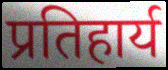
प्रतिहार्य